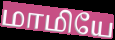
மாமியே